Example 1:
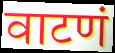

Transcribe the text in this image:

वाटणं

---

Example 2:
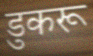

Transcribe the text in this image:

डुकरू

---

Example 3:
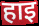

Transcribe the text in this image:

हाइ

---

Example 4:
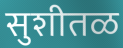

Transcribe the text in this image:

सुशीतळ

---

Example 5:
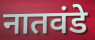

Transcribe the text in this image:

नातवंडे